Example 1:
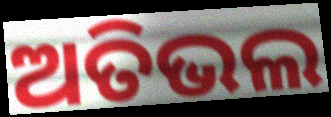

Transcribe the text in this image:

ଅତିଭଲ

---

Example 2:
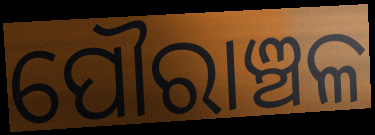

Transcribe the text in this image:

ପୌରାଞ୍ଚଳ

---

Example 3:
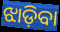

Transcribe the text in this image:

ଝାଡ଼ିବା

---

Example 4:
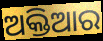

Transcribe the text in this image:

ଅକ୍ତିଆର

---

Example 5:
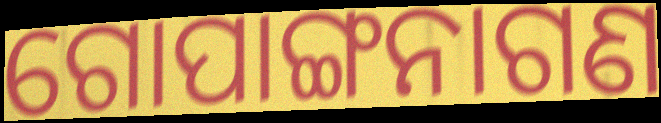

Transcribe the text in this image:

ଗୋପାଙ୍ଗନାଗଣ